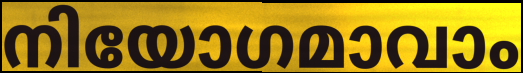
നിയോഗമാവാം